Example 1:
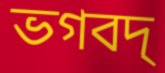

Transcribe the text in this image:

ভগবদ্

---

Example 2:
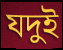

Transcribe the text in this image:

যদুই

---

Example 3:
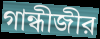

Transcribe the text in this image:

গান্ধীজীর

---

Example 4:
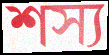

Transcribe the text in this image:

শস্য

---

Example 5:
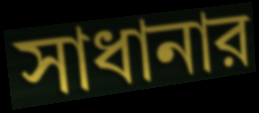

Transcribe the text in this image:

সাধানার